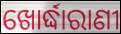
ଖୋର୍ଦ୍ଧାରାଣୀ